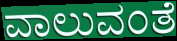
ವಾಲುವಂತೆ